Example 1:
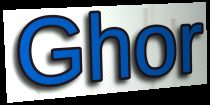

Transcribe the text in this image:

Ghor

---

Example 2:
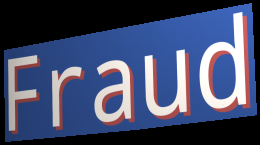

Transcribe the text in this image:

Fraud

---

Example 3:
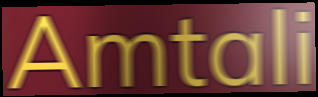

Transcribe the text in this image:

Amtali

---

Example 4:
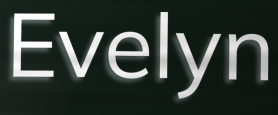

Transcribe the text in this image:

Evelyn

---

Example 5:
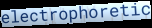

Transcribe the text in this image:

electrophoretic